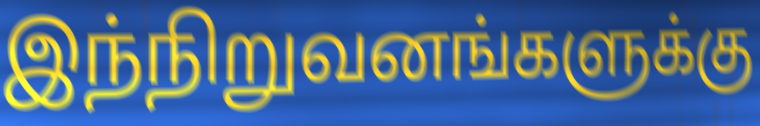
இந்நிறுவனங்களுக்கு